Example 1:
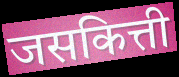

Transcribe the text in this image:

जसकित्ती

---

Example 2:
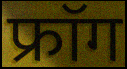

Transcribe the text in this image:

फ्रॉग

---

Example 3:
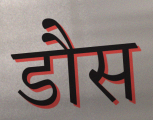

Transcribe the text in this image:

डौस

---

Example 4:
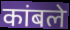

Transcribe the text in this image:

कांबले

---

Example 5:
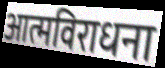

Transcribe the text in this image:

आत्मविराधना